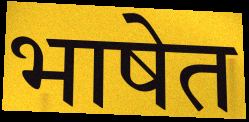
भाषेत